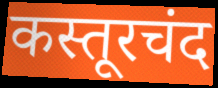
कस्तूरचंद